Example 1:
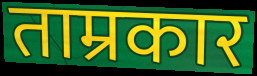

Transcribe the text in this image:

ताम्रकार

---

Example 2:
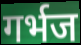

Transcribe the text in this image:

गर्भज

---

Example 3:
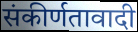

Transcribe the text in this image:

संकीर्णतावादी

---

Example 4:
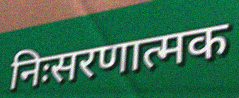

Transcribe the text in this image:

निःसरणात्मक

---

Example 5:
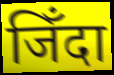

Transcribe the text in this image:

जिँदा